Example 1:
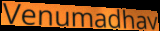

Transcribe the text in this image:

Venumadhav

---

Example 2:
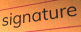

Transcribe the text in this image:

signature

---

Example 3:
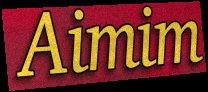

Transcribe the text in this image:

Aimim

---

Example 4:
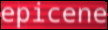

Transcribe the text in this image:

epicene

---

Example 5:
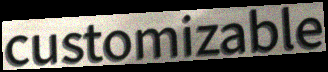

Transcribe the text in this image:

customizable